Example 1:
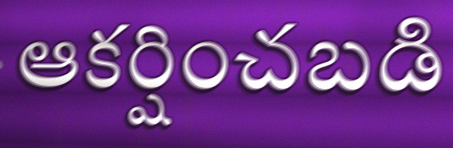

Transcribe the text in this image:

ఆకర్షించబడి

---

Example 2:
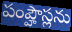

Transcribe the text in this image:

పంప్హౌస్లను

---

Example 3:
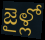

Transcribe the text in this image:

జైళ్లో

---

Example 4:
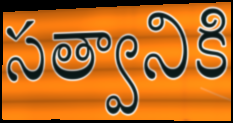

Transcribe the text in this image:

సత్వానికి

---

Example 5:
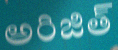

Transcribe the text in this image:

అరిజిత్